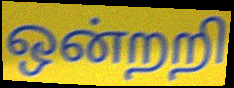
ஒன்றறி